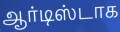
ஆர்டிஸ்டாக